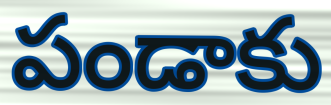
పండాకు